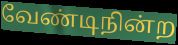
வேண்டிநின்ற